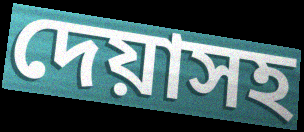
দেয়াসহ